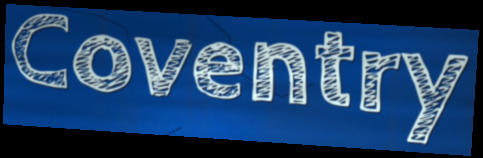
Coventry